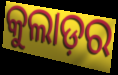
କୁଲାଡ଼ର